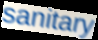
sanitary